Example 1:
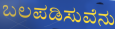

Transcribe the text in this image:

ಬಲಪಡಿಸುವೆನು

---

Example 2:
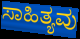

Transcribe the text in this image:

ಸಾಹಿತ್ಯವು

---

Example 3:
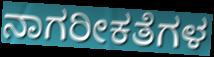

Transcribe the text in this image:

ನಾಗರೀಕತೆಗಳ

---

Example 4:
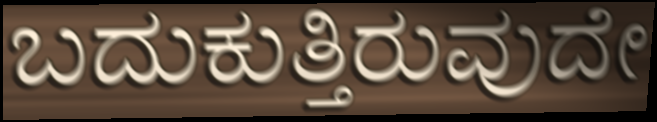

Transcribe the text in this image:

ಬದುಕುತ್ತಿರುವುದೇ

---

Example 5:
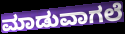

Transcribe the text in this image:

ಮಾಡುವಾಗಲೆ